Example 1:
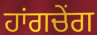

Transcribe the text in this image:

ਹਾਂਗਚੇਂਗ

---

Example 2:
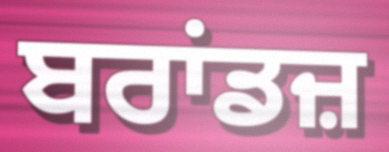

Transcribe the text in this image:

ਬਰਾਂਡਜ਼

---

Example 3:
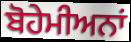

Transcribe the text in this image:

ਬੋਹੇਮੀਅਨਾਂ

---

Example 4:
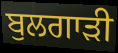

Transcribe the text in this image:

ਬੁਲਗਾੜੀ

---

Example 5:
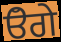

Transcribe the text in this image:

ੳੱਗੇ